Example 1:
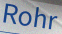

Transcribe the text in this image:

Rohr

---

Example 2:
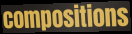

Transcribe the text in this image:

compositions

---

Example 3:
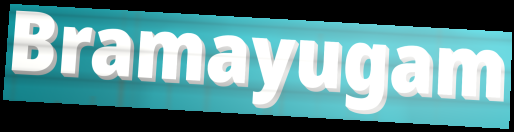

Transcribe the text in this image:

Bramayugam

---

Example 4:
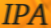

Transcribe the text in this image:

IPA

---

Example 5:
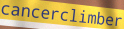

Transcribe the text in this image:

cancerclimber